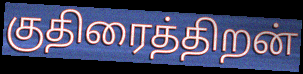
குதிரைத்திறன்